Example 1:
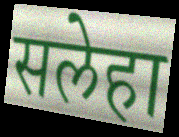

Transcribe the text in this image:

सलेहा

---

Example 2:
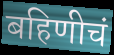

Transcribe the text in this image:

बहिणीचं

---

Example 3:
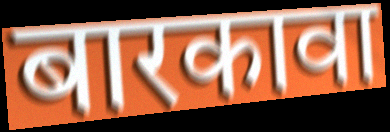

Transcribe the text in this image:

बारकावा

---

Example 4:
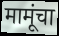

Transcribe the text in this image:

मामूंचा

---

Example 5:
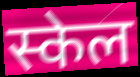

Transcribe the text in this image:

स्केल